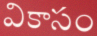
వికాసం